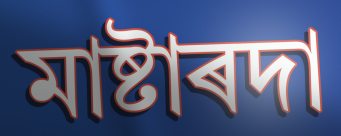
মাষ্টাৰদা